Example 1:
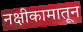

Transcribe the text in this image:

नक्षीकामातून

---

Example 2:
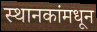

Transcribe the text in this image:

स्थानकांमधून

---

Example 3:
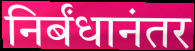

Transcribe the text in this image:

निर्बंधानंतर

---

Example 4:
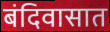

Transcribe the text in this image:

बंदिवासात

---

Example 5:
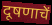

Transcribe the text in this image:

दूषणाचें